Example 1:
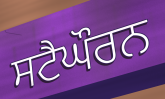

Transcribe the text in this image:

ਸਟੈਘੌਰਨ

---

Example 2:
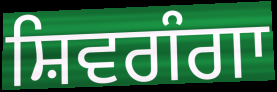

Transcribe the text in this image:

ਸ਼ਿਵਗੰਗਾ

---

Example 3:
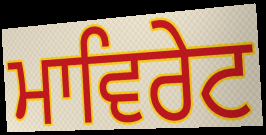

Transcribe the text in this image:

ਮਾਵਿਰੇਟ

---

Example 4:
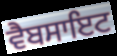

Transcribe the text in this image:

ਵੈਬਸਾਇਟ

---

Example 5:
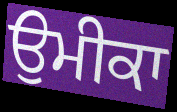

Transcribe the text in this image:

ਉਮੀਕਾ